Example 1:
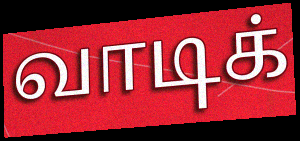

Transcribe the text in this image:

வாடிக்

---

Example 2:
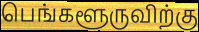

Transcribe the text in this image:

பெங்களூருவிற்கு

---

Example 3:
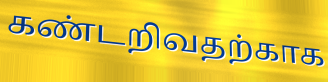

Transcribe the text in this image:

கண்டறிவதற்காக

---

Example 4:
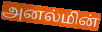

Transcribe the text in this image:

அனல்மின்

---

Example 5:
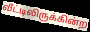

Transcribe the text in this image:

வீட்டிலிருக்கின்ற